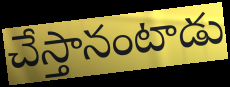
చేస్తానంటాడు